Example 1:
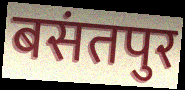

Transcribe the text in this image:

बसंतपुर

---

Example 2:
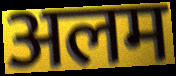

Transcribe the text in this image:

अलम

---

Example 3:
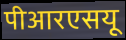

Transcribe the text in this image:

पीआरएसयू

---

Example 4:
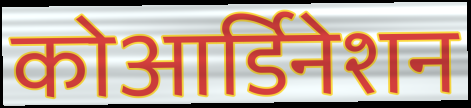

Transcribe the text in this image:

कोआर्डिनेशन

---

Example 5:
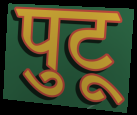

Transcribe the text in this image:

पुटू